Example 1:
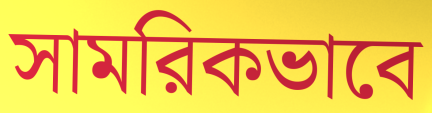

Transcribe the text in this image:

সামরিকভাবে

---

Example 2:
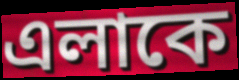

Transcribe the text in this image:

এলাকে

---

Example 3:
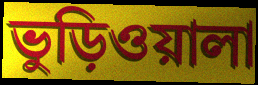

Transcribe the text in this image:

ভুড়িওয়ালা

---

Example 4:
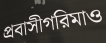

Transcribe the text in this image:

প্রবাসীগরিমাও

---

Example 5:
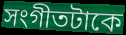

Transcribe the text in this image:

সংগীতটাকে